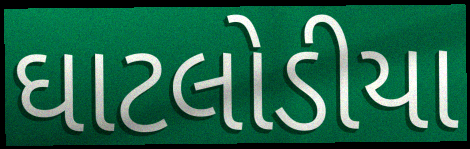
ઘાટલોડીયા